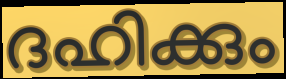
ദഹിക്കും